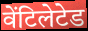
वेंटिलेटेड